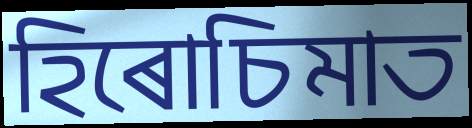
হিৰোচিমাত